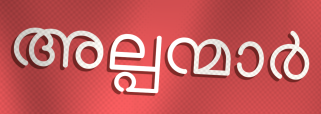
അല്പന്മാർ